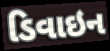
ડિવાઇન